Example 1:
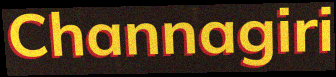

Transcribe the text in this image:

Channagiri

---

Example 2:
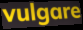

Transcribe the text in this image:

vulgare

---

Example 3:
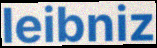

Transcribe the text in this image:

leibniz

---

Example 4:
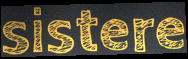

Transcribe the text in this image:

sistere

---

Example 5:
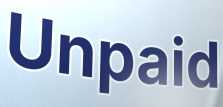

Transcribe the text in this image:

Unpaid